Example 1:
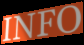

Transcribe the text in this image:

INFO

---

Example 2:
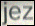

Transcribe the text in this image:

jez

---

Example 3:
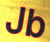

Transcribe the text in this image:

Jb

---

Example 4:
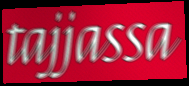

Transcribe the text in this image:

tajjassa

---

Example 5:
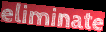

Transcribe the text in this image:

eliminate